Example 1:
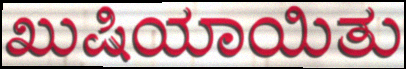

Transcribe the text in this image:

ಖುಷಿಯಾಯಿತು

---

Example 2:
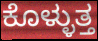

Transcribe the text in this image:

ಕೊಳ್ಳುತ್ತ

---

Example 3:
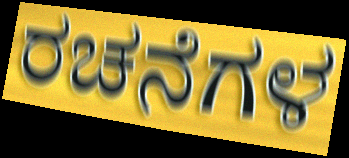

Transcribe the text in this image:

ರಚನೆಗಳ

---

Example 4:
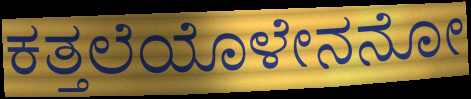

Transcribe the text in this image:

ಕತ್ತಲೆಯೊಳೇನನೋ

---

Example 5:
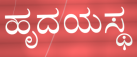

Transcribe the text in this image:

ಹೃದಯಸ್ಥ